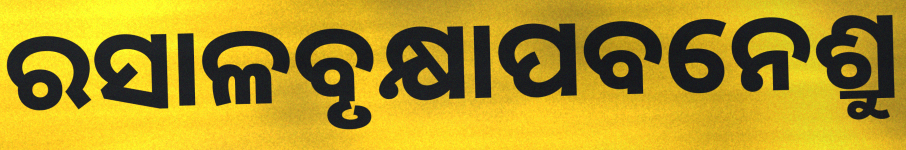
ରସାଳବୃକ୍ଷାପବନେଶ୍ରୁ